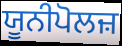
ਯੂਨੀਪੋਲਜ਼